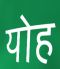
योह